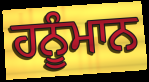
ਹਨੂੰਮਾਨ